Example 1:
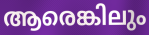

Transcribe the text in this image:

ആരെങ്കിലും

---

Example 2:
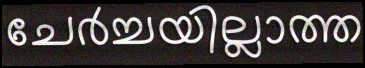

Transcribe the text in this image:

ചേർച്ചയില്ലാത്ത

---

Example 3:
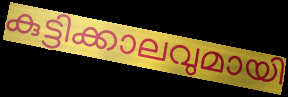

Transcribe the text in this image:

കുട്ടിക്കാലവുമായി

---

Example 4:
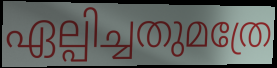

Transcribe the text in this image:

ഏല്പിച്ചതുമത്രേ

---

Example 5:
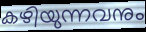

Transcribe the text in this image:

കഴിയുന്നവനും